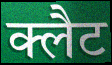
क्लैट